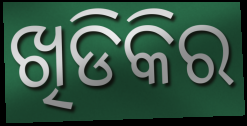
ଖିଡିକିର